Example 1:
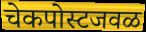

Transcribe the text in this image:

चेकपोस्टजवळ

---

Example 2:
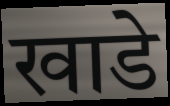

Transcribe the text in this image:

खाडे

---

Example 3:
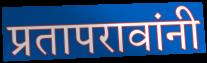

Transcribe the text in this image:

प्रतापरावांनी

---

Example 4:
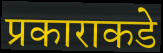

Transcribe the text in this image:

प्रकाराकडे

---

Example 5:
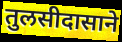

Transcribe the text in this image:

तुलसीदासाने